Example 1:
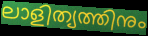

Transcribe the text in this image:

ലാളിത്യത്തിനും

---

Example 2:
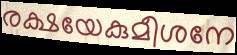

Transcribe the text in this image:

രക്ഷയേകുമീശനേ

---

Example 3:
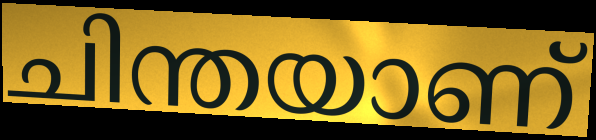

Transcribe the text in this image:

ചിന്തയാണ്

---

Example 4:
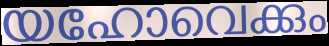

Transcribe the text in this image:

യഹോവെക്കും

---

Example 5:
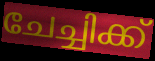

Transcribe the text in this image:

ചേച്ചിക്ക്